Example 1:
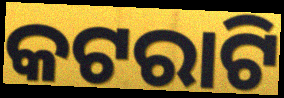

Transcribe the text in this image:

କଟରାଟି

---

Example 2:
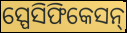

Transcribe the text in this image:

ସ୍ପେସିଫିକେସନ୍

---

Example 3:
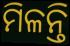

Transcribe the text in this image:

ମିଳନ୍ତି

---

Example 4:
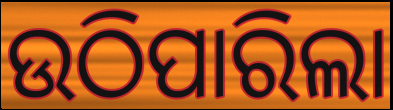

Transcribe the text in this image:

ଉଠିପାରିଲା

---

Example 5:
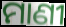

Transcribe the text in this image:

ମାଣୀ